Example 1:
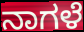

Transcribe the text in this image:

ನಾಗಳೆ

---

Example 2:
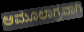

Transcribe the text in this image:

ಆಮೂಲಾಗ್ರವಾಗಿ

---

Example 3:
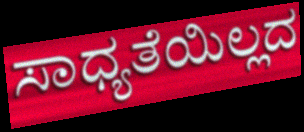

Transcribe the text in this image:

ಸಾಧ್ಯತೆಯಿಲ್ಲದ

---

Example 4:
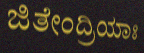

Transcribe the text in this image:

ಜಿತೇಂದ್ರಿಯಾಃ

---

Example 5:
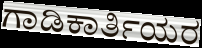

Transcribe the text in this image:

ಗಾಡಿಕಾರ್ತಿಯರ